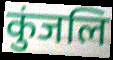
कुंजलि